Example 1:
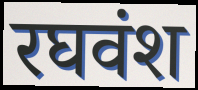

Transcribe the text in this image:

रघवंश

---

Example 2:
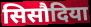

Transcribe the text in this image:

सिसौदिया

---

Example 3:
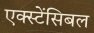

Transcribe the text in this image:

एक्स्टेंसिबल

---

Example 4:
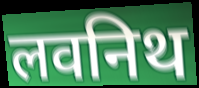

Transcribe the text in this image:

लवनिथ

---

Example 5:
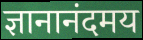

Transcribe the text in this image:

ज्ञानानंदमय